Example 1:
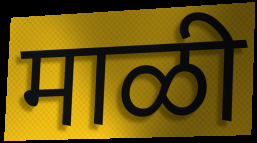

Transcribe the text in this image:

माळी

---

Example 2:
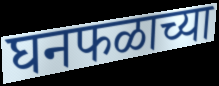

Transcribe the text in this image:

घनफळाच्या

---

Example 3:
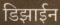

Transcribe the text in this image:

डिझाईन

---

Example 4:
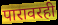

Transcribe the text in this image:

पारावरही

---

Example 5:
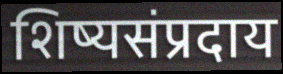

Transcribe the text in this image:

शिष्यसंप्रदाय